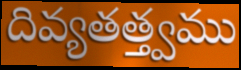
దివ్యతత్త్వము